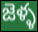
జెళ్ళ